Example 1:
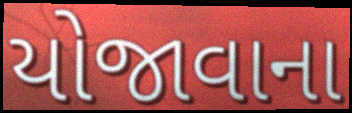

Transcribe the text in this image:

યોજાવાના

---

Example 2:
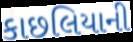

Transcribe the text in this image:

કાછલિયાની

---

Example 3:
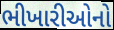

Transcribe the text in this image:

ભીખારીઓનો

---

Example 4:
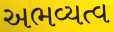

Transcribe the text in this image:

અભવ્યત્વ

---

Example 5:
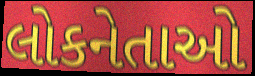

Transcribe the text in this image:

લોકનેતાઓ